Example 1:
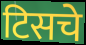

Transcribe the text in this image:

टिसचे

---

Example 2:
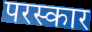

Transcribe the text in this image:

परस्कार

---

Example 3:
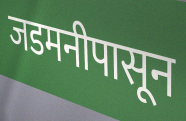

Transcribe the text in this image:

जडमनीपासून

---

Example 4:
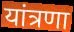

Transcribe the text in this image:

यांत्रणा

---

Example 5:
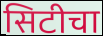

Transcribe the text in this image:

सिटीचा